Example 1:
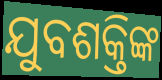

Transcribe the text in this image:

ଯୁବଶକ୍ତିଙ୍କ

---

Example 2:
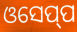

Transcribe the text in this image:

ଓସେପ୍‍ପ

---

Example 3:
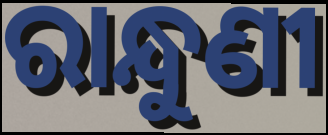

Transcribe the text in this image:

ରାନ୍ଧୁଣୀ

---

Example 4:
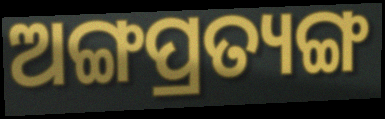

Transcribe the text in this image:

ଅଙ୍ଗପ୍ରତ୍ୟଙ୍ଗ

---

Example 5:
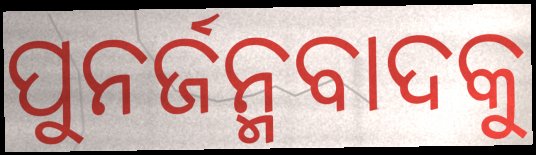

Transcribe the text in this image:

ପୁନର୍ଜନ୍ମବାଦକୁ